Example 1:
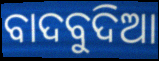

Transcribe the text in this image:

ବାଦବୁଦିଆ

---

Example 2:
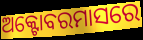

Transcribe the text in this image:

ଅକ୍ଟୋବରମାସରେ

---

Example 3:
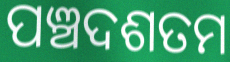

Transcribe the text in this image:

ପଞ୍ଚଦଶତମ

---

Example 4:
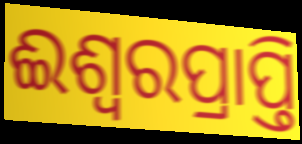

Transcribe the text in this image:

ଈଶ୍ଵରପ୍ରାପ୍ତି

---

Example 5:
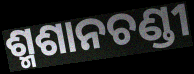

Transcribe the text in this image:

ଶ୍ମଶାନଚଣ୍ଡୀ